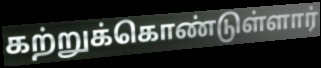
கற்றுக்கொண்டுள்ளார்